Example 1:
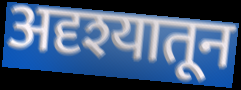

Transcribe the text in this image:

अदृश्यातून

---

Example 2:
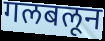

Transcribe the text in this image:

गलबलून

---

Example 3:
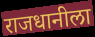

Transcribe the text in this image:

राजधानीला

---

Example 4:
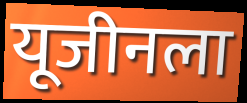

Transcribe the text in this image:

यूजीनला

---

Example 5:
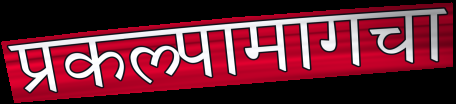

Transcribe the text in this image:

प्रकल्पामागचा